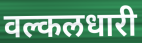
वल्कलधारी